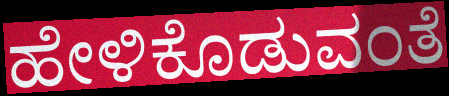
ಹೇಳಿಕೊಡುವಂತೆ